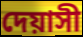
দেয়াসী